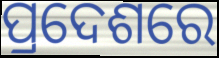
ପ୍ରଦେଶରେ